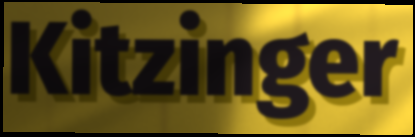
Kitzinger